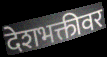
देशभक्तीवर